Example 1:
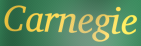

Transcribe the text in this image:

Carnegie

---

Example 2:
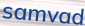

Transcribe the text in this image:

samvad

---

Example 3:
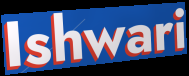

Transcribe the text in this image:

Ishwari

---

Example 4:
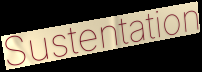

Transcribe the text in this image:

Sustentation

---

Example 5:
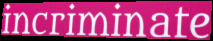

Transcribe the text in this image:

incriminate